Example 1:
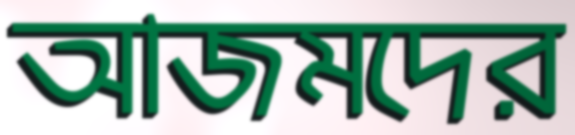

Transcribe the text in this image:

আজমদের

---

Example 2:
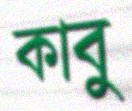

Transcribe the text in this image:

কাবু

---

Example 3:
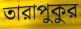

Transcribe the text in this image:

তারাপুকুর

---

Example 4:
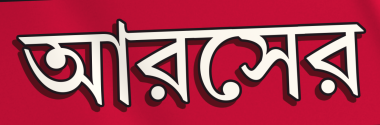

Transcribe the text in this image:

আরসের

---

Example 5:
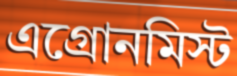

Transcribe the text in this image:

এগ্রোনমিস্ট